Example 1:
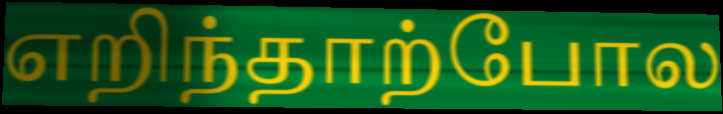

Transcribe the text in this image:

எறிந்தாற்போல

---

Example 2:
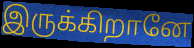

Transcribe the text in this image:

இருக்கிறானே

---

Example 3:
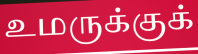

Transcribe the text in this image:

உமருக்குக்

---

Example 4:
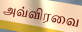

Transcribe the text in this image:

அவ்விரவை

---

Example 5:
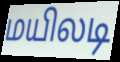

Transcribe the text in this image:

மயிலடி